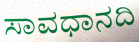
ಸಾವಧಾನದಿ